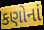
કણોનાં